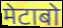
मेटाबो